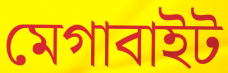
মেগাবাইট